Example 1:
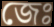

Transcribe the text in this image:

জেঃ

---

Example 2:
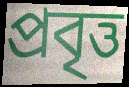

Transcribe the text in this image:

প্রবৃত্ত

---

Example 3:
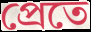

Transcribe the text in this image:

প্রেতে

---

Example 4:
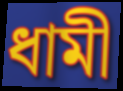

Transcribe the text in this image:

ধামী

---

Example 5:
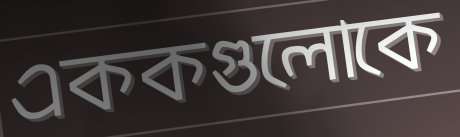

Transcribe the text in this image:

এককগুলোকে